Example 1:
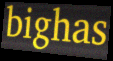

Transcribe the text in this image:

bighas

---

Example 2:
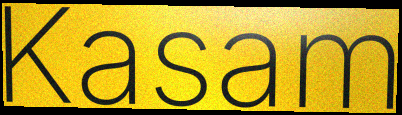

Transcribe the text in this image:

Kasam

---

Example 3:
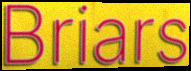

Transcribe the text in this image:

Briars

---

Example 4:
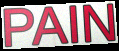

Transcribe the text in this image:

PAIN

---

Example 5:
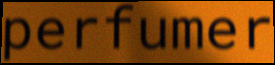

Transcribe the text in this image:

perfumer